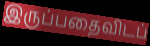
இருப்பதைவிடப்